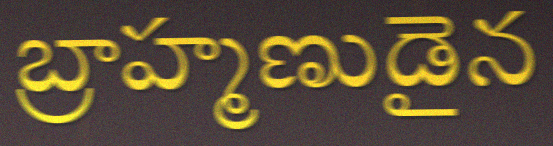
బ్రాహ్మణుడైన